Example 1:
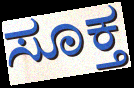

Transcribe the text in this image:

ಸೂಕ್ತ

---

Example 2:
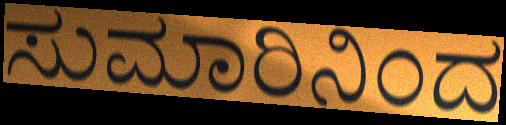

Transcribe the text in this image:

ಸುಮಾರಿನಿಂದ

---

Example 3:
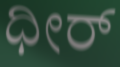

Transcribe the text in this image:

ಧೀರ್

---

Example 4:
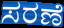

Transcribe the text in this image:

ಸರಣೆ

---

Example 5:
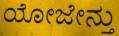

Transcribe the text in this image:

ಯೋಜೇನ್ತು